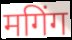
मगिंग